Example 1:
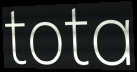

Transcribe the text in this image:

tota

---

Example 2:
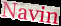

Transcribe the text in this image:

Navin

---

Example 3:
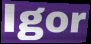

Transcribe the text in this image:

Igor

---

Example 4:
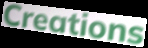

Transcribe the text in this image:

Creations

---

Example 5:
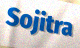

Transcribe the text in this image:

Sojitra